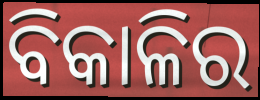
ବିକାଳିର